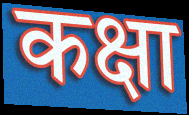
कक्षा